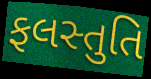
ફલસ્તુતિ